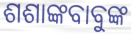
ଶଶାଙ୍କବାବୁଙ୍କ